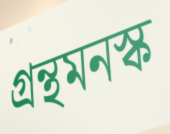
গ্রন্থমনস্ক